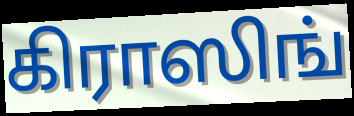
கிராஸிங்